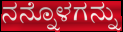
ನನ್ನೊಳಗನ್ನು